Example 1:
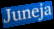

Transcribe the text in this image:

Juneja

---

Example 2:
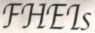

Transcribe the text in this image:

FHEIs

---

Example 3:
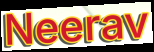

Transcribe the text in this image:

Neerav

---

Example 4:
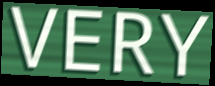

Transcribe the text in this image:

VERY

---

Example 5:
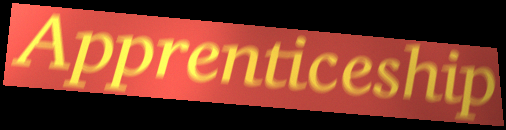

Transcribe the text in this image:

Apprenticeship